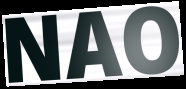
NAO